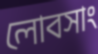
লোবসাং